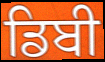
ਡਿਬੀ